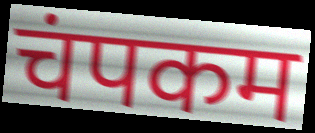
चंपकम